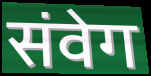
संवेग